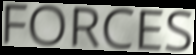
FORCES